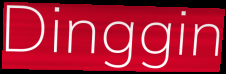
Dinggin